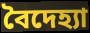
বৈদেহ্যা